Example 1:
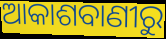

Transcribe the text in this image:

ଆକାଶବାଣୀରୁ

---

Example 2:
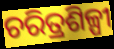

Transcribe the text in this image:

ଚରିତ୍ରଶିଳ୍ପୀ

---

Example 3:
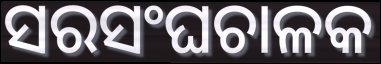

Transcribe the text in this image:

ସରସଂଘଚାଳକ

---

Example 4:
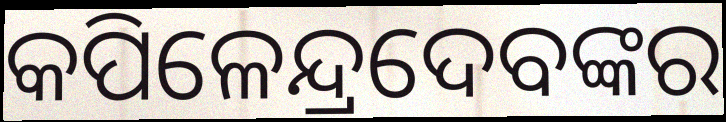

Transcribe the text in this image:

କପିଳେନ୍ଦ୍ରଦେବଙ୍କର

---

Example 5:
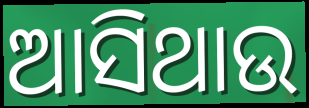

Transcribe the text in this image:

ଆସିଥାଉ